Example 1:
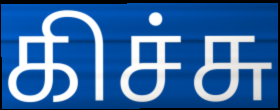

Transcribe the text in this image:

கிச்சு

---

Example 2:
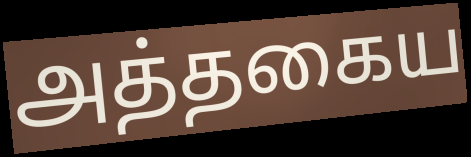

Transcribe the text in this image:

அத்தகைய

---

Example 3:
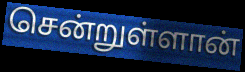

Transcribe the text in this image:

சென்றுள்ளான்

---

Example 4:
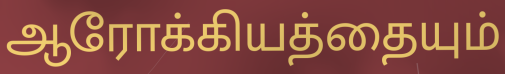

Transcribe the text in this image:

ஆரோக்கியத்தையும்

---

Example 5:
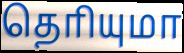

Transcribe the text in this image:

தெரியுமா